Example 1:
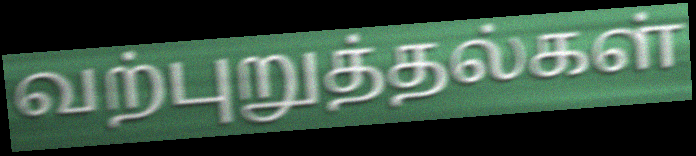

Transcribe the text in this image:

வற்புறுத்தல்கள்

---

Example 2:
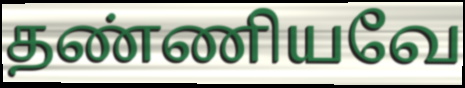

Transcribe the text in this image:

தண்ணியவே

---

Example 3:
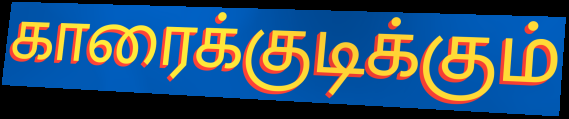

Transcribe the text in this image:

காரைக்குடிக்கும்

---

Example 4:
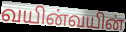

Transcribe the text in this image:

வயின்வயின்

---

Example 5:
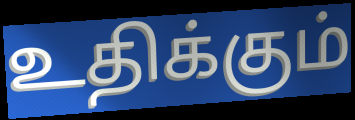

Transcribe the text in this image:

உதிக்கும்